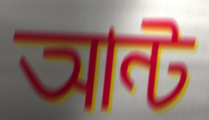
আন্ট